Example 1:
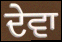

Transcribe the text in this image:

ਦੇਵਾ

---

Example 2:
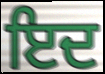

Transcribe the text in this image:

ਇਦ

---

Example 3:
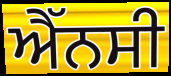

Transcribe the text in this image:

ਐੱਨਸੀ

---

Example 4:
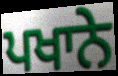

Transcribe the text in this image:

ਪਖਾਨੇ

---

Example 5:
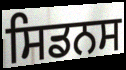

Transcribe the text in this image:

ਸਿਡਨਸ